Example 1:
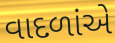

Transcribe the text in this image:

વાદળાંએ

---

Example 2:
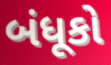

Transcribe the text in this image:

બંધૂકો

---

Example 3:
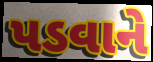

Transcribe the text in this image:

પડવાને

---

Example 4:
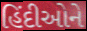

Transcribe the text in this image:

હિંદીઓને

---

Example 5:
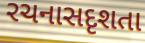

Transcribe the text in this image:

રચનાસદૃશતા